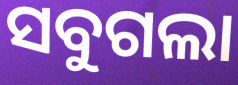
ସବୁଗଲା